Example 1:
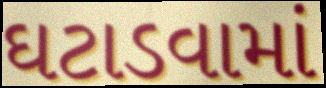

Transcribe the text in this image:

ઘટાડવામાં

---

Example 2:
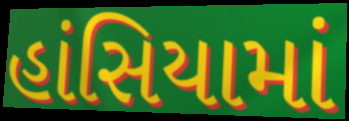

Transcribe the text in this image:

હાંસિયામાં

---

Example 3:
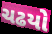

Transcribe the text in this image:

ચઢયો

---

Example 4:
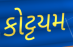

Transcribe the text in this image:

કોટ્ટયમ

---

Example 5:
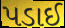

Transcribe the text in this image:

પડાઈ